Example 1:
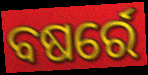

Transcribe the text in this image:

ବଷର୍ରେ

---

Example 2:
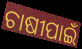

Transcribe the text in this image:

ଚାଷୀପାଇଁ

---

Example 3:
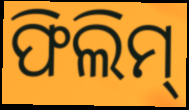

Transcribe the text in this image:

ଫିଲିମ୍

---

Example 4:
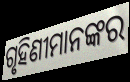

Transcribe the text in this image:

ଗୃହିଣୀମାନଙ୍କର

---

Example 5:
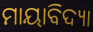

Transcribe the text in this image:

ମାୟାବିଦ୍ୟା